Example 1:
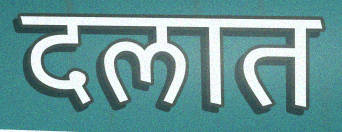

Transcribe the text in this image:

दलात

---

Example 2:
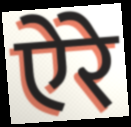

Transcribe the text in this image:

ऐरे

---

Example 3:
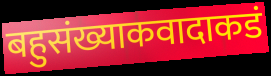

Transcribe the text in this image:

बहुसंख्याकवादाकडं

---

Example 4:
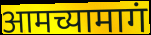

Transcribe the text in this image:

आमच्यामागं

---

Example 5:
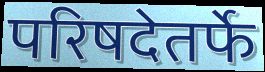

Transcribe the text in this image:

परिषदेतर्फे